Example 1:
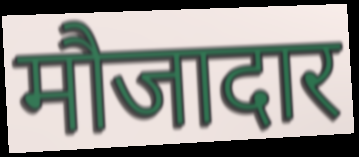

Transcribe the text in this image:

मौजादार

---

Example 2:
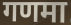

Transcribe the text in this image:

गणमा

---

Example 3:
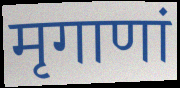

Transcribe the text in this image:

मृगाणां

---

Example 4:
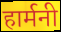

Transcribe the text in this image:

हार्मनी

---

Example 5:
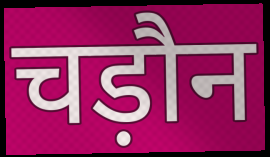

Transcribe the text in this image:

चड़ौन